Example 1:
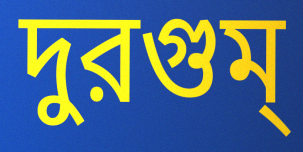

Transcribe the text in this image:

দুরগুম্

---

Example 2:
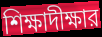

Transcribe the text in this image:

শিক্ষাদীক্ষার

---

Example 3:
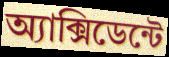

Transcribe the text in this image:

অ্যাক্সিডেন্টে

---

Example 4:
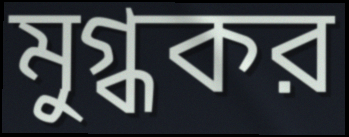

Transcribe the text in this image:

মুগ্ধকর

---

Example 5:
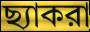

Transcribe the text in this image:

ছ্যাকরা